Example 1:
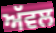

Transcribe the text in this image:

ਅੱਵਲ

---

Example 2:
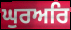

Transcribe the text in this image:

ਘੁਰਅਰਿ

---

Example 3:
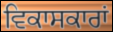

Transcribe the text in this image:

ਵਿਕਾਸਕਾਰਾਂ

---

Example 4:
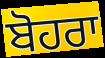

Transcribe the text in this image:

ਬੋਹਰਾ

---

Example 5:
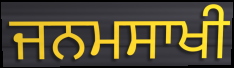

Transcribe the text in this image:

ਜਨਮਸਾਖੀ